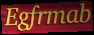
Egfrmab